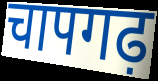
चापगढ़